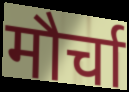
मौर्चा